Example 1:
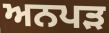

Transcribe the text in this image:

ਅਨਪੜ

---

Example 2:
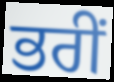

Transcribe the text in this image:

ਭਰੀਂ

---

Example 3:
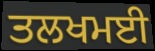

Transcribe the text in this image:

ਤਲਖਮਈ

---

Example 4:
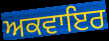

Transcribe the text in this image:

ਅਕਵਾਇਰ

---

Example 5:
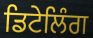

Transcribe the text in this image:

ਡਿਟੇਲਿੰਗ